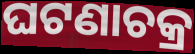
ଘଟଣାଚକ୍ର